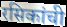
रसिकांची